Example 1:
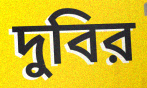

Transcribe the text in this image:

দুবির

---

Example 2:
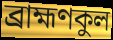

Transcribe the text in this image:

ব্রাহ্মণকুল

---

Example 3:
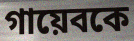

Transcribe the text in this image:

গায়েবকে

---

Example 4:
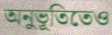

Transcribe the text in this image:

অনুভূতিতেও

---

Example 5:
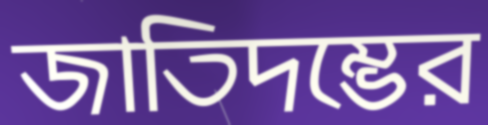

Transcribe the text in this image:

জাতিদম্ভের